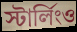
স্টার্লিংও